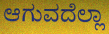
ಆಗುವದೆಲ್ಲಾ